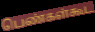
பெண்கள்கூட